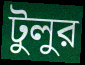
টুলুর